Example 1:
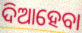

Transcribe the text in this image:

ଦିଆହେବା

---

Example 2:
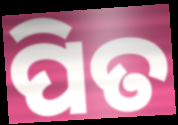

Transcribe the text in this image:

ପିତ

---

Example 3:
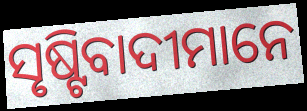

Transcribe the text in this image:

ସୃଷ୍ଟିବାଦୀମାନେ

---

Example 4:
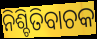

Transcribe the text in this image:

ନିଶ୍ଚିତିବାଚକ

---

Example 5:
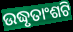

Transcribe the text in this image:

ଉଦ୍ଧୃତାଂଶଟି